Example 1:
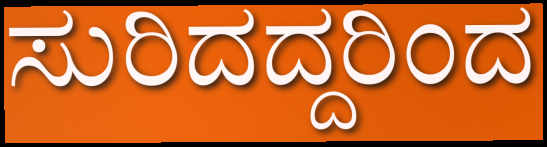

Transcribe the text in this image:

ಸುರಿದದ್ದರಿಂದ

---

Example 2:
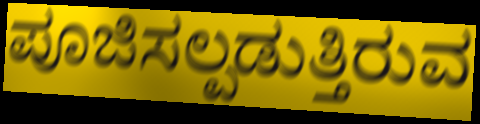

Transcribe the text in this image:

ಪೂಜಿಸಲ್ಪಡುತ್ತಿರುವ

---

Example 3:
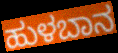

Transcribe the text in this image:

ಹುಳಬಾನ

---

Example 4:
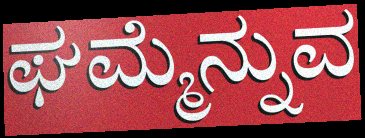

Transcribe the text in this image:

ಘಮ್ಮೆನ್ನುವ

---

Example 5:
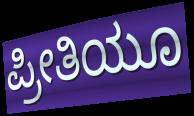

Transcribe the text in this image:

ಪ್ರೀತಿಯೂ